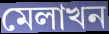
মেলাখন